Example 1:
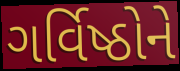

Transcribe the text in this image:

ગર્વિષ્ઠોને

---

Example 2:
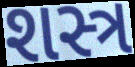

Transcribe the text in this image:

શસ્ત્ર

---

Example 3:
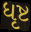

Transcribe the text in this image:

ધૃષ્ટ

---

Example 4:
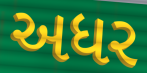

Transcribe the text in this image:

અધર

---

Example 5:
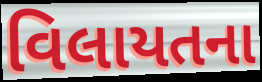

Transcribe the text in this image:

વિલાયતના